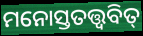
ମନୋସ୍ତତତ୍ତ୍ୱବିତ୍